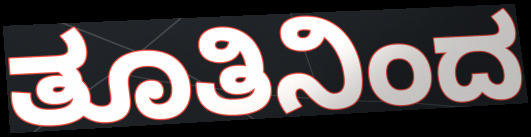
ತೂತಿನಿಂದ